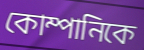
কোম্পানিকে